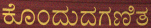
ಕೊಂದುದಗಣಿತ